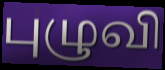
புழுவி